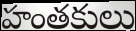
హంతకులు